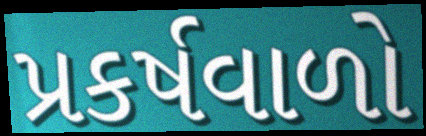
પ્રકર્ષવાળો